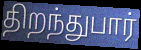
திறந்துபார்